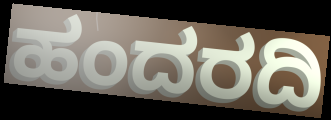
ಹಂದರದಿ